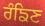
ਰੰਙਿਣ